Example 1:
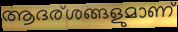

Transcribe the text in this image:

ആദര്ശങ്ങളുമാണ്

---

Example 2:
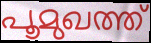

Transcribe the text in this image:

പൂമുഖത്ത്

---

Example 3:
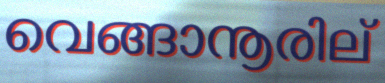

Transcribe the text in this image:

വെങ്ങാനൂരില്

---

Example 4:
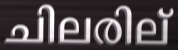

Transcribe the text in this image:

ചിലരില്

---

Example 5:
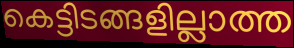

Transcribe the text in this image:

കെട്ടിടങ്ങളില്ലാത്ത